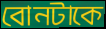
বোনটাকে